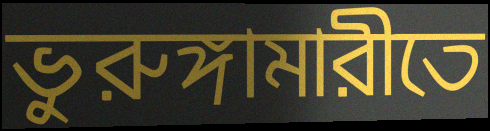
ভুরুঙ্গামারীতে